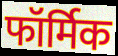
फॉर्मिक